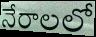
నేరాలలో